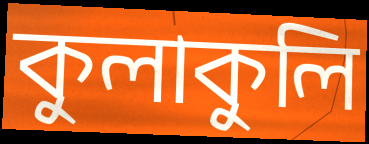
কুলাকুলি